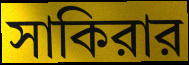
সাকিরার